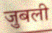
जुबली